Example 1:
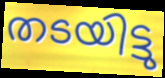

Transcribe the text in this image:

തടയിട്ടു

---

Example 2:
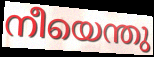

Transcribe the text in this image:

നീയെന്തു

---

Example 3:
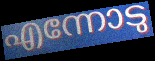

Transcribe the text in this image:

എന്നോടു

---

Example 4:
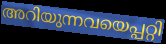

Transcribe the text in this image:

അറിയുന്നവയെപ്പറ്റി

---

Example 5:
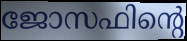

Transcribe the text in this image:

ജോസഫിന്റെ